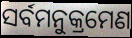
ସର୍ବମନୁକ୍ରମେଣ